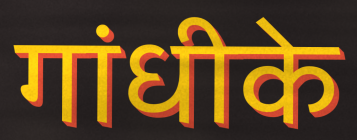
गांधीके